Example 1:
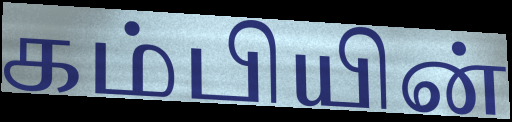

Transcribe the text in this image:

கம்பியின்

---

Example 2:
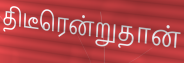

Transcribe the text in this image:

திடீரென்றுதான்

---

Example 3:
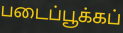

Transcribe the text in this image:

படைப்பூக்கப்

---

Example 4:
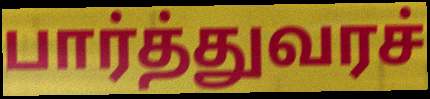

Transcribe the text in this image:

பார்த்துவரச்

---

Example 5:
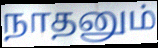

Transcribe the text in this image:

நாதனும்